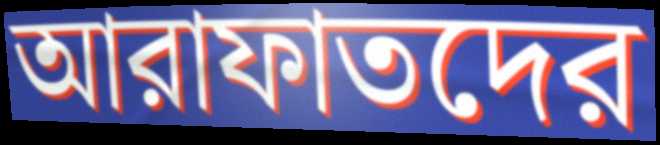
আরাফাতদের